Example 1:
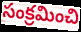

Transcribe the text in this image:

సంక్రమించి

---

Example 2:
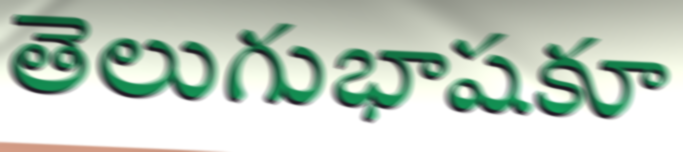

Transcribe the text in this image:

తెలుగుభాషకూ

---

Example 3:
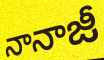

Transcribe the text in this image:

నానాజీ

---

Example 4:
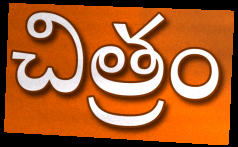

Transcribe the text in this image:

చిత్రం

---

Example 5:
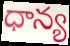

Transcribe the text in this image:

ధాన్య